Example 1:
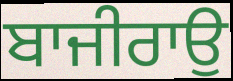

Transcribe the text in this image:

ਬਾਜੀਰਾਉ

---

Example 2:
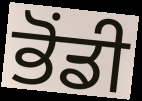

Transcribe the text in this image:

ਭੋਂਡੀ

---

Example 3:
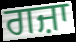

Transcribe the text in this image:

ਗਜ਼ਾ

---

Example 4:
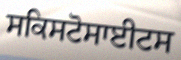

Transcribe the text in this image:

ਸਕਿਸਟੋਸਾਈਟਸ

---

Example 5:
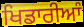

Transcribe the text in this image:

ਖਿਡਾਰੀਆੰ